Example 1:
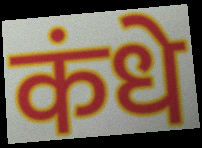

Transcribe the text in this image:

कंधे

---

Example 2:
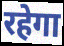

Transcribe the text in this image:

रहेगा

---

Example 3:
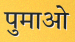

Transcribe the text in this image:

पुमाओ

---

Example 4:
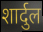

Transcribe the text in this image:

शार्दुल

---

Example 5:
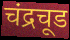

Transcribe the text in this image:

चंद्रचूड